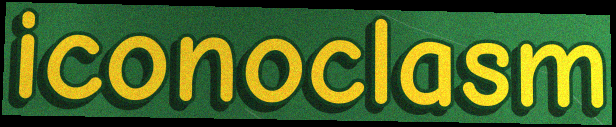
iconoclasm